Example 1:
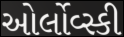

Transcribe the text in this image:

ઓર્લોવ્સ્કી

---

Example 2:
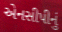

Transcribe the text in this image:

એનસીપીનું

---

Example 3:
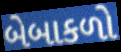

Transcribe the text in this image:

બેબાકળો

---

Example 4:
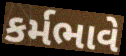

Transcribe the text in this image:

કર્મભાવે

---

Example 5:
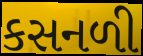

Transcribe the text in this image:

કસનળી